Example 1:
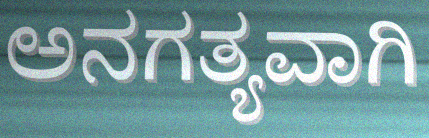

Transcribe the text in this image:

ಅನಗತ್ಯವಾಗಿ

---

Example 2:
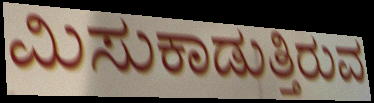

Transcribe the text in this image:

ಮಿಸುಕಾಡುತ್ತಿರುವ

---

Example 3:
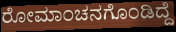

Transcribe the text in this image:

ರೋಮಾಂಚನಗೊಂಡಿದ್ದೆ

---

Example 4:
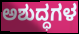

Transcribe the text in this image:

ಅಶುದ್ಧಗಳ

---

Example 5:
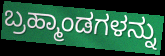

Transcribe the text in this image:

ಬ್ರಹ್ಮಾಂಡಗಳನ್ನು